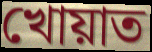
খোয়াত